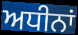
ਅਧੀਨਾਂ